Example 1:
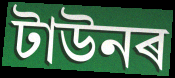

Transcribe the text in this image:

টাউনৰ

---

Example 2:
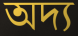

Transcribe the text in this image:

অদ্য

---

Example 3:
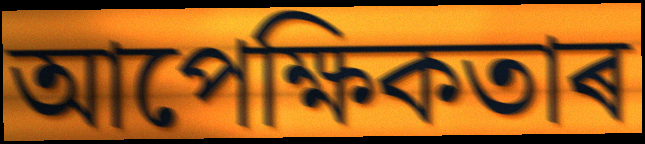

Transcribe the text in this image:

আপেক্ষিকতাৰ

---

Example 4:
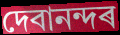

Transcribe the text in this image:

দেবানন্দৰ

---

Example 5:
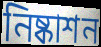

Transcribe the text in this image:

নিষ্কাশন